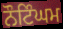
ਨੌਟਿੰਘਮ